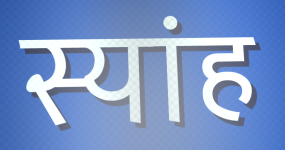
स्यांह